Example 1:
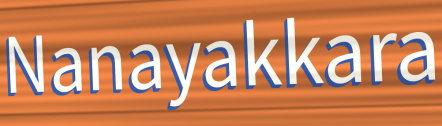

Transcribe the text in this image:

Nanayakkara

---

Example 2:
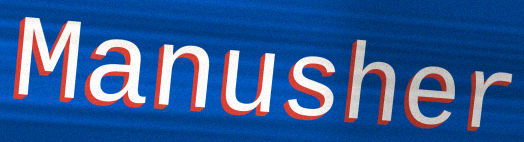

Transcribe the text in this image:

Manusher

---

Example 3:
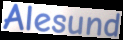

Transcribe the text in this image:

Alesund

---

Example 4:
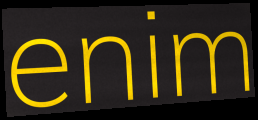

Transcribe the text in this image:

enim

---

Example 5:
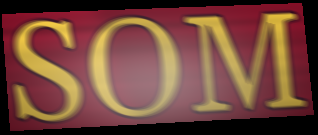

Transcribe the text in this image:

SOM